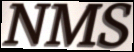
NMS